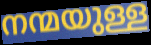
നന്മയുള്ള